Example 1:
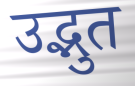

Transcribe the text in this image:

उद्भुत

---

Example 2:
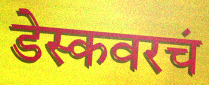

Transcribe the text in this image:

डेस्कवरचं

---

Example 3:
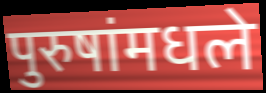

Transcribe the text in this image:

पुरुषांमधले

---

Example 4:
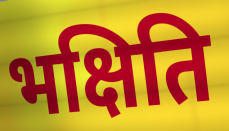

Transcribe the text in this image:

भक्षिति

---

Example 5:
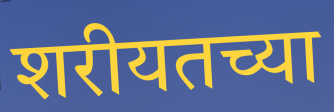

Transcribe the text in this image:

शरीयतच्या